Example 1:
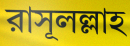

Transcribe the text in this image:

রাসূলল্লাহ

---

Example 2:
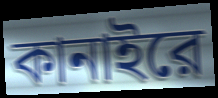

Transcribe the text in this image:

কানাইরে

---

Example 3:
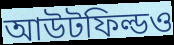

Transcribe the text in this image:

আউটফিল্ডও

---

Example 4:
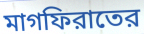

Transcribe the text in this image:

মাগফিরাতের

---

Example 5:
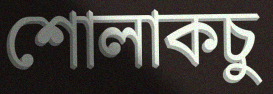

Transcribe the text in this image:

শোলাকচু